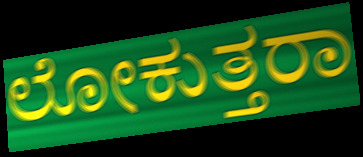
ಲೋಕುತ್ತರಾ